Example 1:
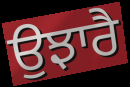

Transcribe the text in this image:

ਉਝਾਰੈ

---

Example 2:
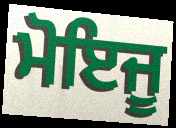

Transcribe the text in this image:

ਮੋਇਜੂ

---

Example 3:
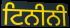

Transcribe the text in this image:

ਟਿਨੀਨੀ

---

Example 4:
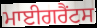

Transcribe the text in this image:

ਮਾਈਗਰੈਂਟਸ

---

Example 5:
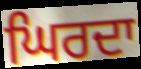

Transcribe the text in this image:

ਘਿਰਦਾ